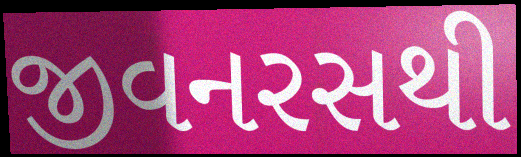
જીવનરસથી